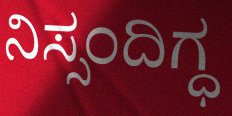
ನಿಸ್ಸಂದಿಗ್ಧ